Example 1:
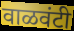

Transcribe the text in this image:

वाळवंटी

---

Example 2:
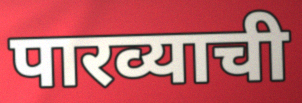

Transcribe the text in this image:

पारव्याची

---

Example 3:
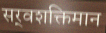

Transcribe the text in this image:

सर्वशक्तिमान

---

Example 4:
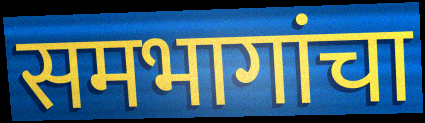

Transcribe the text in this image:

समभागांचा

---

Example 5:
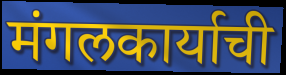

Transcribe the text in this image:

मंगलकार्याची